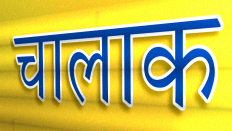
चालाक